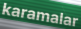
karamalar